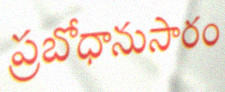
ప్రబోధానుసారం